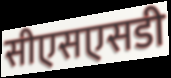
सीएसएसडी